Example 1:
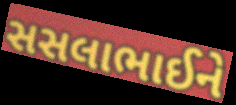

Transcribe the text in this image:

સસલાભાઈને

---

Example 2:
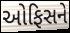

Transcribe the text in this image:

ઓફિસને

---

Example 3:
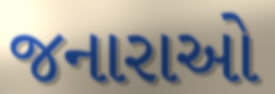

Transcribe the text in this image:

જનારાઓ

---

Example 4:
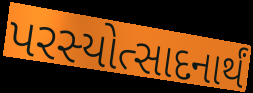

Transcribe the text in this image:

પરસ્યોત્સાદનાર્થં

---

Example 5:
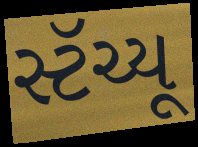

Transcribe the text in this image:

સ્ટૅચ્યૂ